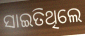
ସାଇତିଥିଲେ